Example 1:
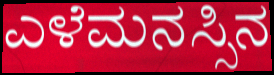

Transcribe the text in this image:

ಎಳೆಮನಸ್ಸಿನ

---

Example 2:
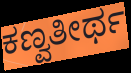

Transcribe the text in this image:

ಕಣ್ವತೀರ್ಥ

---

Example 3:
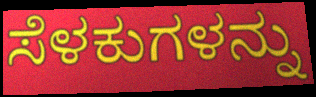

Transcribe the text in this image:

ಸೆಳಕುಗಳನ್ನು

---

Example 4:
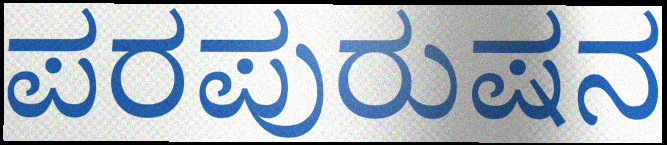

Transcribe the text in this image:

ಪರಪುರುಷನ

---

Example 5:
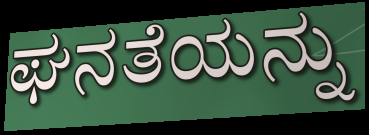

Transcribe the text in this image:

ಘನತೆಯನ್ನು